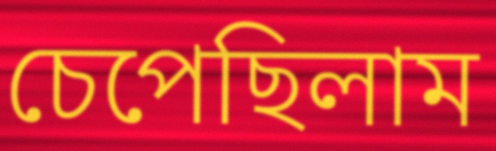
চেপেছিলাম